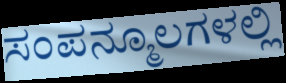
ಸಂಪನ್ಮೂಲಗಳಲ್ಲಿ